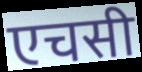
एचसी